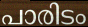
പാരിടം